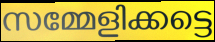
സമ്മേളിക്കട്ടെ